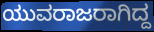
ಯುವರಾಜರಾಗಿದ್ದ